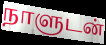
நாளுடன்